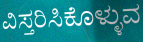
ವಿಸ್ತರಿಸಿಕೊಳ್ಳುವ